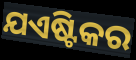
ଯଏଷ୍ଟିକର